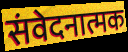
संवेदनात्मक